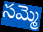
సమ్మె